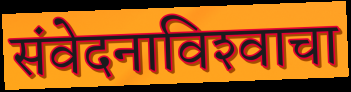
संवेदनाविश्वाचा